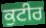
ਕੁਟੀਰ